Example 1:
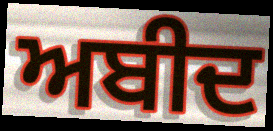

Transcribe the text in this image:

ਅਬੀਦ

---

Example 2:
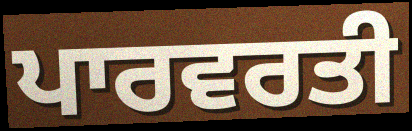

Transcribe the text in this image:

ਪਾਰਵਰਤੀ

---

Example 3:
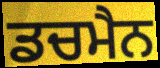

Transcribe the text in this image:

ਡਚਮੈਨ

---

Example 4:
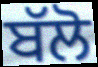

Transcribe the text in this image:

ਬੱਲੋ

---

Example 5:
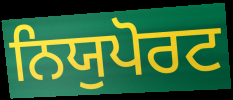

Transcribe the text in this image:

ਨਿਯੁਪੋਰਟ